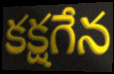
కక్షగేన